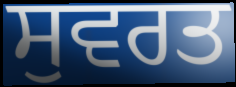
ਸੁਵਰਤ